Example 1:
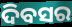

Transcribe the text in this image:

ଦିବସର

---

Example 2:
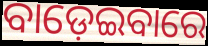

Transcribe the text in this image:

ବାଡ଼େଇବାରେ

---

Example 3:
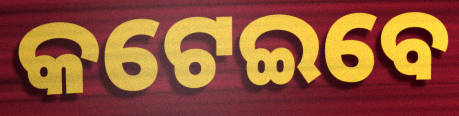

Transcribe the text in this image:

କଟେଇବେ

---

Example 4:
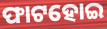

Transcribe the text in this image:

ଫାଟହୋଇ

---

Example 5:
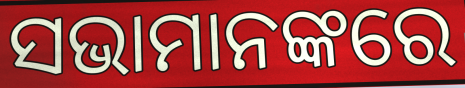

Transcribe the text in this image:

ସଭାମାନଙ୍କରେ